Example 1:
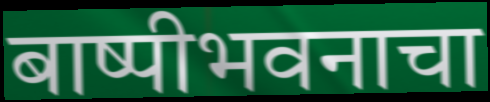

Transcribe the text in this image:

बाष्पीभवनाचा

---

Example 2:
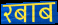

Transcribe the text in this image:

रबाब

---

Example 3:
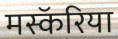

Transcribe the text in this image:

मस्कॅरिया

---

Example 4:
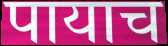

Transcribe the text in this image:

पायाच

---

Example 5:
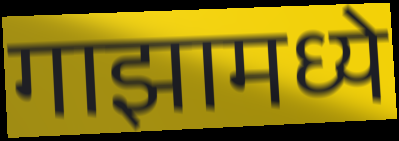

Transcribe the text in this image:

गाझामध्ये